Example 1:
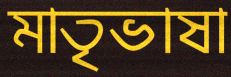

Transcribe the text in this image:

মাতৃভাষা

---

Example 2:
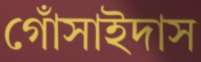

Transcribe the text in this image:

গোঁসাইদাস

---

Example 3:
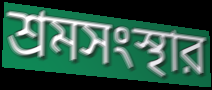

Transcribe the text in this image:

শ্রমসংস্থার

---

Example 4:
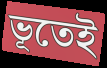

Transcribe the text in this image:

ভূতেই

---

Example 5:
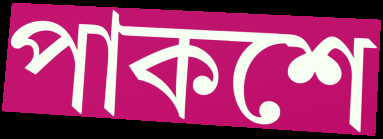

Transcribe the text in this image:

পাকশে